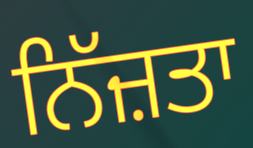
ਨਿੱਜ਼ਤਾ